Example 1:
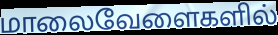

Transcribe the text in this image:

மாலைவேளைகளில்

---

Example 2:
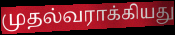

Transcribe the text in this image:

முதல்வராக்கியது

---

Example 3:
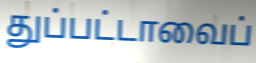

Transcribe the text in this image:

துப்பட்டாவைப்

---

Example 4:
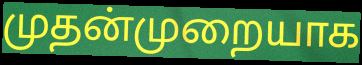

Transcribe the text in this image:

முதன்முறையாக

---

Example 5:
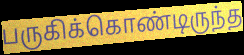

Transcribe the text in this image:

பருகிக்கொண்டிருந்த